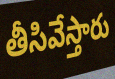
తీసివేస్తారు